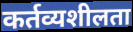
कर्तव्यशीलता